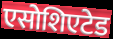
एसोशिएटेड